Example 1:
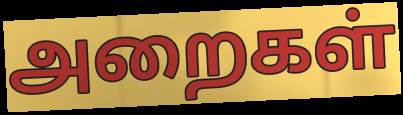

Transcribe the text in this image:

அறைகள்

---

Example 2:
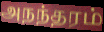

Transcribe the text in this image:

அநந்தரம்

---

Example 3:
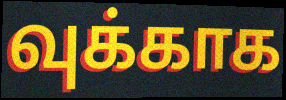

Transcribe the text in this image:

வுக்காக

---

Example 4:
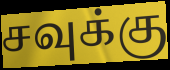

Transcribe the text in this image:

சவுக்கு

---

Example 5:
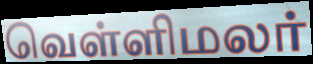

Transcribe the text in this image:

வெள்ளிமலர்